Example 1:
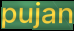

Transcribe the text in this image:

pujan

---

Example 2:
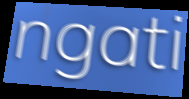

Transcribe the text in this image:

ngati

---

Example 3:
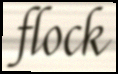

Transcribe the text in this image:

flock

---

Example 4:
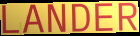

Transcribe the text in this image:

LANDER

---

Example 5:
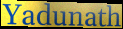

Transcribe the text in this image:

Yadunath